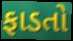
ફાડતો